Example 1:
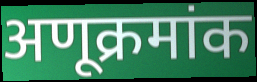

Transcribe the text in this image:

अणूक्रमांक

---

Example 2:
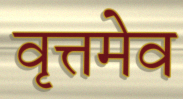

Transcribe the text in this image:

वृत्तमेव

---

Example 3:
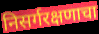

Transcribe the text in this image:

निसर्गरक्षणाचा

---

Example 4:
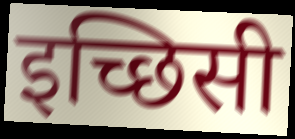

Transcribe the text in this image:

इच्छिसी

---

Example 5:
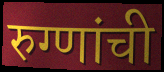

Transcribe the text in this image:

रुग्णांची